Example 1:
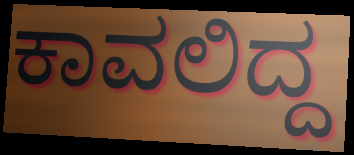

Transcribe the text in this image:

ಕಾವಲಿದ್ದ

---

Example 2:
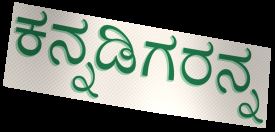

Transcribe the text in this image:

ಕನ್ನಡಿಗರನ್ನ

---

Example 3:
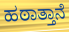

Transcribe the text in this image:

ಹಠಾತ್ತಾನೆ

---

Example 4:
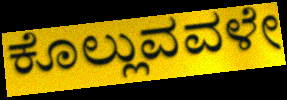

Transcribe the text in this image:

ಕೊಲ್ಲುವವಳೇ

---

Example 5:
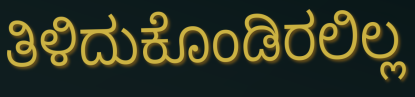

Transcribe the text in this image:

ತಿಳಿದುಕೊಂಡಿರಲಿಲ್ಲ